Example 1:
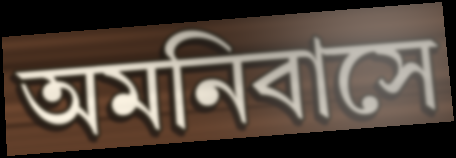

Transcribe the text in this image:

অমনিবাসে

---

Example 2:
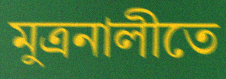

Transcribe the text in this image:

মুত্রনালীতে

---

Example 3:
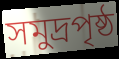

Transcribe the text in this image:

সমুদ্রপৃষ্ঠ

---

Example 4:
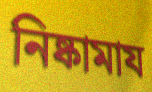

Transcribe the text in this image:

নিষ্কামায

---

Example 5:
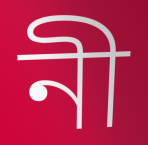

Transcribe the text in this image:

নী